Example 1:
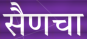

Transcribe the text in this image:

सैणचा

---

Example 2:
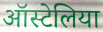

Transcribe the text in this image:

ऑस्टेलिया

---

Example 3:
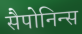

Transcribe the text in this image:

सैपोनिन्स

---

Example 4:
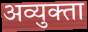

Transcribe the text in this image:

अव्युक्ता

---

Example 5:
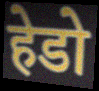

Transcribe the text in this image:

हेडो